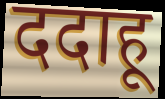
ददाहू